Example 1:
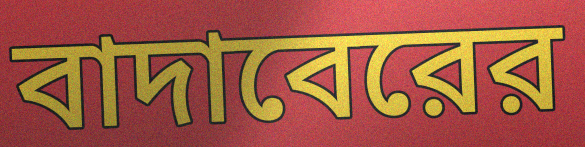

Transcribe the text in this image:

বাদাবেরের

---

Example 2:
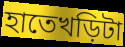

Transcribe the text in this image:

হাতেখড়িটা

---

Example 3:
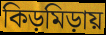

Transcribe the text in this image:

কিড়মিড়ায়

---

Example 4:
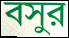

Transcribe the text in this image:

বসুর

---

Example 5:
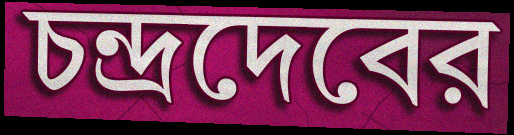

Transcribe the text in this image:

চন্দ্রদেবের